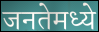
जनतेमध्ये